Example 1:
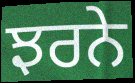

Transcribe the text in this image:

ਝਰਨੇ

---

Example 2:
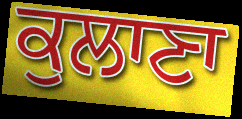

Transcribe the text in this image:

ਕੁਲਾਣਾ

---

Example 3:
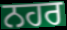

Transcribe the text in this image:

ਨਹਰ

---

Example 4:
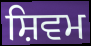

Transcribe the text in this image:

ਸ਼ਿਵਮ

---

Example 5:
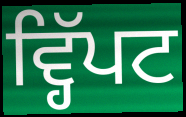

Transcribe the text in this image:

ਵ੍ਹਿੱਪਟ